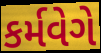
કર્મવેગે